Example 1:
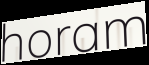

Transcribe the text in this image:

horam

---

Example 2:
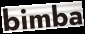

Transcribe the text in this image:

bimba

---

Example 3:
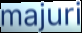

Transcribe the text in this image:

majuri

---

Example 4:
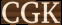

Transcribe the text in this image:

CGK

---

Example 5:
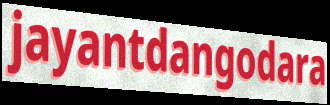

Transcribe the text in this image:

jayantdangodara